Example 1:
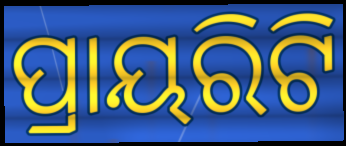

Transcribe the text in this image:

ପ୍ରାୟରିଟି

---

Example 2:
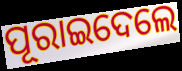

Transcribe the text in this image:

ପୂରାଇଦେଲେ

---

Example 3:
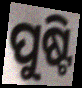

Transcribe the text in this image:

ପୁଷ୍ଟି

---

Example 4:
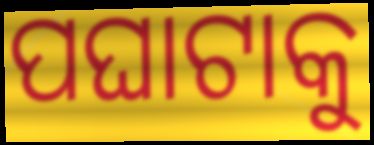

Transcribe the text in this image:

ପଘାଟାକୁ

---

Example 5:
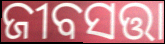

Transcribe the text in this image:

ଜୀବସତ୍ତା